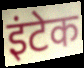
इंटेक